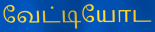
வேட்டியோட